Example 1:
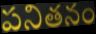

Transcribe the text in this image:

పనితనం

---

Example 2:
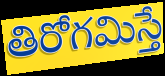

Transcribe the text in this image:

తిరోగమిస్తే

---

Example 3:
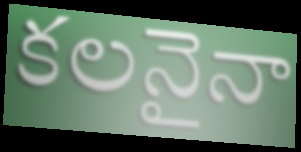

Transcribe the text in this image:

కలనైనా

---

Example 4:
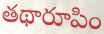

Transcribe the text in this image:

తథారూపిం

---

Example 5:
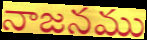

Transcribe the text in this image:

నాజనము